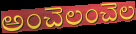
అంచెలంచెల